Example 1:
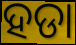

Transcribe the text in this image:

ହଡା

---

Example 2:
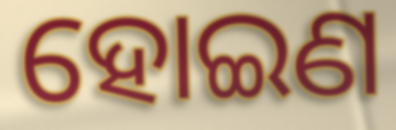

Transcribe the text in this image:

ହୋଇଣ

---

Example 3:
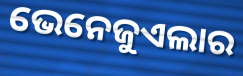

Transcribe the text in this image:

ଭେନେଜୁଏଲାର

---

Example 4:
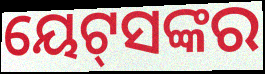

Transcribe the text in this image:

ୟେଟ୍‌ସଙ୍କର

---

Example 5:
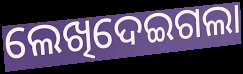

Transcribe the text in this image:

ଲେଖିଦେଇଗଲା